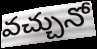
వచ్చునో